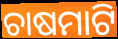
ଚାଷମାଟି